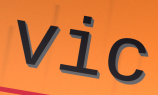
vic